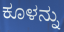
ಕೂಳನ್ನು